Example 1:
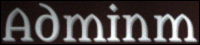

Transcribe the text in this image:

Adminm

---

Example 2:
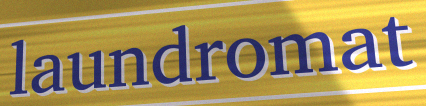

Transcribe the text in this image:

laundromat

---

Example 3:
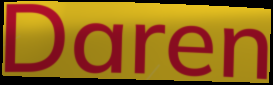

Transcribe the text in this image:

Daren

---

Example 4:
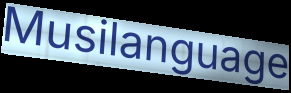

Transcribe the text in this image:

Musilanguage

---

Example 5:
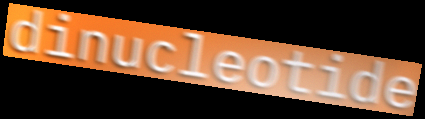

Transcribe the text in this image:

dinucleotide